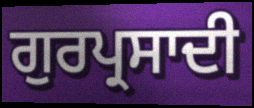
ਗੁਰਪ੍ਰਸਾਦੀ